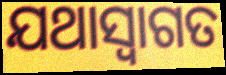
ଯଥାସ୍ଵାଗତ